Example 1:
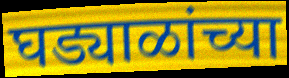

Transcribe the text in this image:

घड्याळांच्या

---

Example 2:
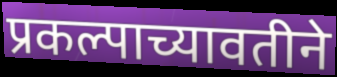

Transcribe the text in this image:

प्रकल्पाच्यावतीने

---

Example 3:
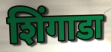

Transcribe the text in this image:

शिंगाडा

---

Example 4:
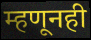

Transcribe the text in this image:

म्‍हणूनही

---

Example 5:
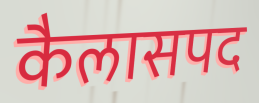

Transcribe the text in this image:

कैलासपद